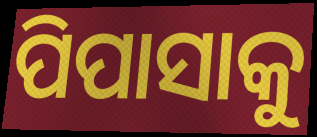
ପିପାସାକୁ